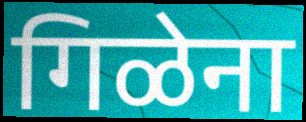
गिळेना